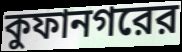
কুফানগরের